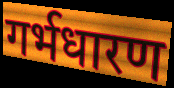
गर्भधारण